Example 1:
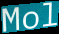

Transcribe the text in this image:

Mol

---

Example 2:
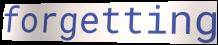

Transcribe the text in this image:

forgetting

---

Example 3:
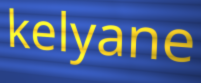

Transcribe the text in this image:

kelyane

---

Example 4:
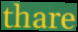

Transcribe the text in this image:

thare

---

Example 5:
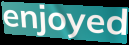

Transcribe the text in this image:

enjoyed